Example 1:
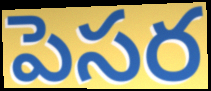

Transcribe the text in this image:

పెసర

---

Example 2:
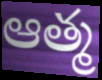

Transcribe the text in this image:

ఆత్మ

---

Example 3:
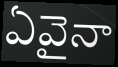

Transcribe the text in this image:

ఏవైనా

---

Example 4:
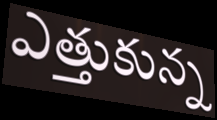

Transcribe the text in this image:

ఎత్తుకున్న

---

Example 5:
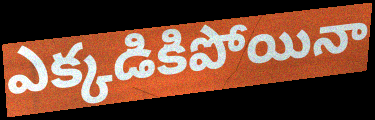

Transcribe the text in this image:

ఎక్కడికిపోయినా